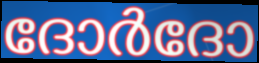
ദോർദോ